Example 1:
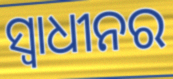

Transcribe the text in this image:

ସ୍ୱାଧୀନର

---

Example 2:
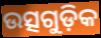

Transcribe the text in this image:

ଉତ୍ସଗୁଡ଼ିକ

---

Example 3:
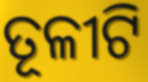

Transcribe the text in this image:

ତୂଳୀଟି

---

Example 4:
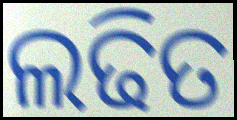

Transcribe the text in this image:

ଲଢିତ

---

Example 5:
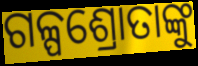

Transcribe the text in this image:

ଗଳ୍ପଶ୍ରୋତାଙ୍କୁ